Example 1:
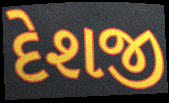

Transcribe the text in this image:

દેશજી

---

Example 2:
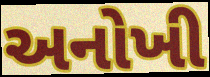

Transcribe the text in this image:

અનોખી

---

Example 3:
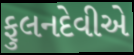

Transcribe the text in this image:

ફુલનદેવીએ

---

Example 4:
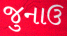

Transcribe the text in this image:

જુનાઉ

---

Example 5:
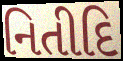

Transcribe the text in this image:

નિતીદિ